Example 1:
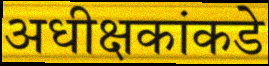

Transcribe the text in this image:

अधीक्षकांकडे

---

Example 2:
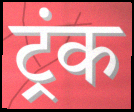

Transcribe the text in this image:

ट्रंक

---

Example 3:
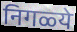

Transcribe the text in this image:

निगळ्ये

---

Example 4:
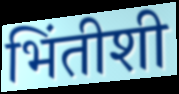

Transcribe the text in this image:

भिंतीशी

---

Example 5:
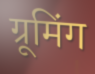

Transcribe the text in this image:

ग्रूमिंग